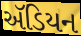
ઍંડિયન